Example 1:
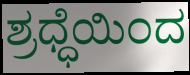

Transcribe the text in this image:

ಶ್ರಧ್ಧೆಯಿಂದ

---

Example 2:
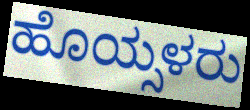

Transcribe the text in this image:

ಹೊಯ್ಸಳರು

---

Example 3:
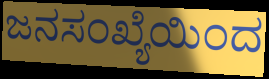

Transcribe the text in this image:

ಜನಸಂಖ್ಯೆಯಿಂದ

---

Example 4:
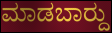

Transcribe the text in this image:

ಮಾಡಬಾರ್‍ದು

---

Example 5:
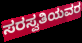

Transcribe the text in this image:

ಸರಸ್ವತಿಯವರ